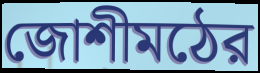
জোশীমঠের